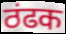
ठंढक